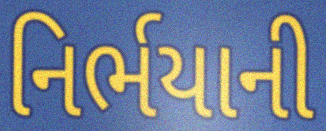
નિર્ભયાની